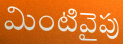
మింటివైపు